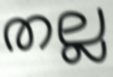
തല്ല